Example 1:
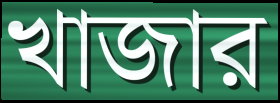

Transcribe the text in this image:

খাজার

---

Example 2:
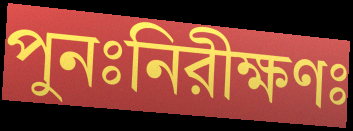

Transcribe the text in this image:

পুনঃনিরীক্ষণঃ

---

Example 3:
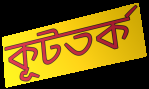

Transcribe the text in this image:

কূটতর্ক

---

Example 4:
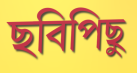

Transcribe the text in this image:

ছবিপিছু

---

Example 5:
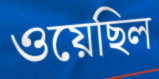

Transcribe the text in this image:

ওয়েছিল